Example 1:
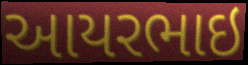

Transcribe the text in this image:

આયરભાઇ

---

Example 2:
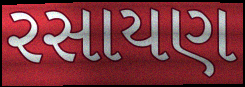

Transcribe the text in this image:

રસાયણ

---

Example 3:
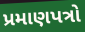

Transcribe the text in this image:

પ્રમાણપત્રો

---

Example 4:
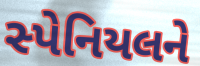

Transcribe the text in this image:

સ્પેનિયલને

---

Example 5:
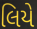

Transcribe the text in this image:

લિયે